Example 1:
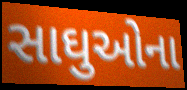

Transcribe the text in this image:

સાઘુઓના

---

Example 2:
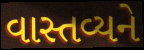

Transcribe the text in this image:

વાસ્તવ્યને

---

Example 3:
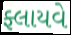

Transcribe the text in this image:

ફ્લાયવે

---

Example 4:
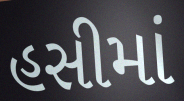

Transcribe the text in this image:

હસીમાં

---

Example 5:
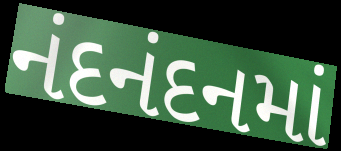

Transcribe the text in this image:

નંદનંદનમાં